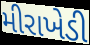
મીરાખેડી